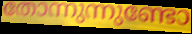
തോന്നുന്നുണ്ടോ